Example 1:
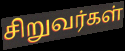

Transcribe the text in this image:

சிறுவர்கள்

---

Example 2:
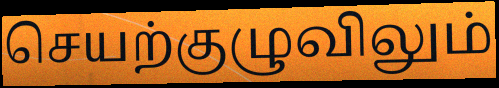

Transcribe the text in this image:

செயற்குழுவிலும்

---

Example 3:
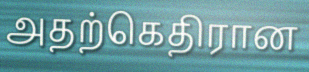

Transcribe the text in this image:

அதற்கெதிரான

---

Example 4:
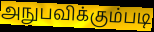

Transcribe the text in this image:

அநுபவிக்கும்படி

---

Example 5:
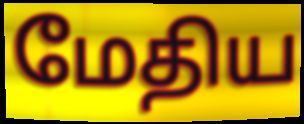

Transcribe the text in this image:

மேதிய